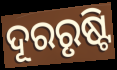
ଦୂରରୃଷ୍ଟି